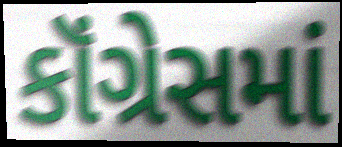
કૉંગ્રેસમાં